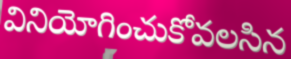
వినియోగించుకోవలసిన